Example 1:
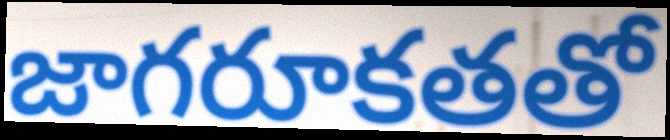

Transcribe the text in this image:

జాగరూకతతో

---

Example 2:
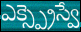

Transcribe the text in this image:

ఎక్స్ప్రెస్వే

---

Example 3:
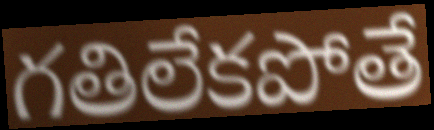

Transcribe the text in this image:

గతిలేకపోతే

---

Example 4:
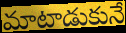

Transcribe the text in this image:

మాటాడుకునే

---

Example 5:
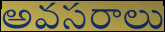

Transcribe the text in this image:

అవసరాలు